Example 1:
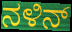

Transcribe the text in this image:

ನಳಿನ್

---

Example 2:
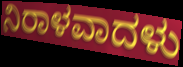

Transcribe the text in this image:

ನಿರಾಳವಾದಳು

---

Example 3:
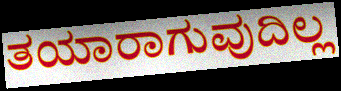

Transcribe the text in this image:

ತಯಾರಾಗುವುದಿಲ್ಲ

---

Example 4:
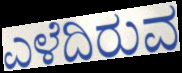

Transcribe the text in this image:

ಎಳೆದಿರುವ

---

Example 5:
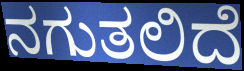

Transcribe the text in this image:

ನಗುತಲಿದೆ